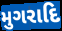
મુગરાદિ